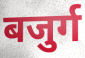
बजुर्ग